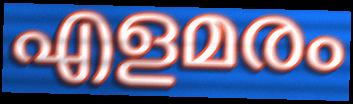
എളമരം